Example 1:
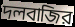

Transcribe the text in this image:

দলবাজির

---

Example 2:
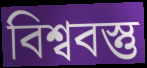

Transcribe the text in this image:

বিশ্ববস্তু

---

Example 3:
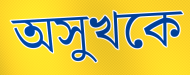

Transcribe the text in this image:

অসুখকে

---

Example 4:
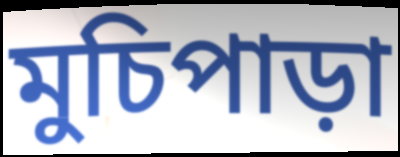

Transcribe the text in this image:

মুচিপাড়া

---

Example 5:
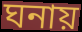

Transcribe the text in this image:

ঘনায়